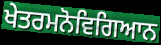
ਖੇਤਰਮਨੋਵਿਗਿਆਨ